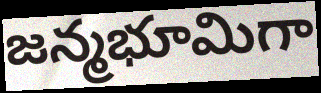
జన్మభూమిగా